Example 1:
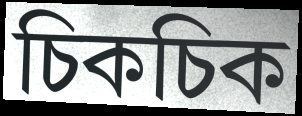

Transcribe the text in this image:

চিকচিক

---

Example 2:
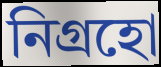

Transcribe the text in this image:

নিগ্রহো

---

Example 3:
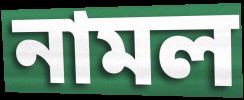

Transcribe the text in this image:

নামল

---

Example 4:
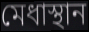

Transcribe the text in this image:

মেধাস্থান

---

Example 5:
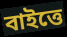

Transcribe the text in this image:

বাইত্তে